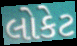
લોકેટ